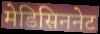
मेडिसिननेट